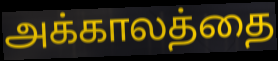
அக்காலத்தை